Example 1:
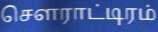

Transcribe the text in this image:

சௌராட்டிரம்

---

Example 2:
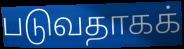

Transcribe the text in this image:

படுவதாகக்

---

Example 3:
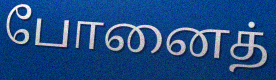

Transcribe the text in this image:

போனைத்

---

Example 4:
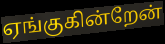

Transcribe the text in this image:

ஏங்குகின்றேன்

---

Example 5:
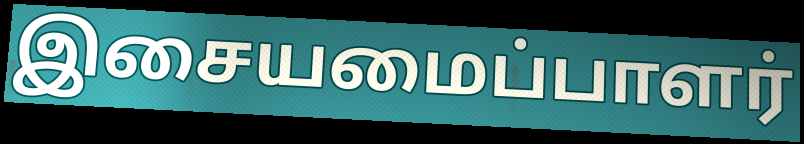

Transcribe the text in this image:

இசையமைப்பாளர்